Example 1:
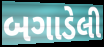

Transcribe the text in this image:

બગાડેલી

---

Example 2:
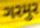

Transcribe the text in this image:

ગરમુર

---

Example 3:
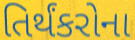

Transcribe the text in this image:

તિર્થંકરોના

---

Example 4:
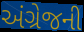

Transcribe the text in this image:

અંગ્રેજની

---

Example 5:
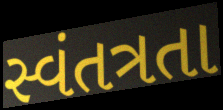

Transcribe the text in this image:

સ્વંતત્રતા